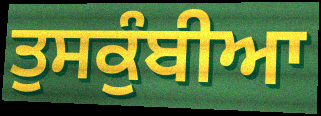
ਤੁਸਕੁੰਬੀਆ